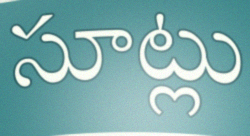
సూట్లు